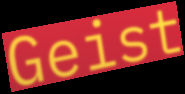
Geist